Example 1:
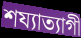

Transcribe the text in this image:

শয্যাত্যাগী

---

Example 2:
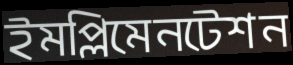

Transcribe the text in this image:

ইমপ্লিমেনটেশন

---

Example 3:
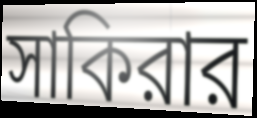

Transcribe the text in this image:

সাকিরার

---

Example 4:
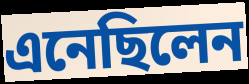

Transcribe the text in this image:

এনেছিলেন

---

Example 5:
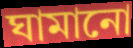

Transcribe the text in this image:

ঘামানো